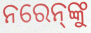
ନରେନ୍‌ଙ୍କୁ